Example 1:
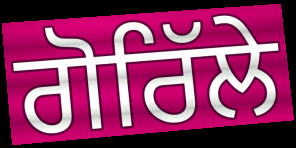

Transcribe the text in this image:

ਗੋਰਿੱਲੇ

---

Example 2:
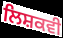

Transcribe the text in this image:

ਲਿਸ਼ਕਵੀ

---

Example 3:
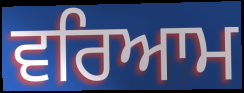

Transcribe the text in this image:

ਵਰਿਆਮ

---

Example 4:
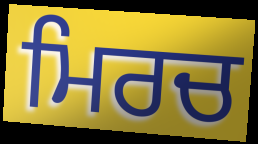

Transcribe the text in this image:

ਮਿਰਚ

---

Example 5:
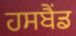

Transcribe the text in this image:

ਹਸਬੈਂਡ